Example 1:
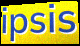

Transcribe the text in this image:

ipsis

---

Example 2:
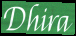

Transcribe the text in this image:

Dhira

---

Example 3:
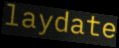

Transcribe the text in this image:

laydate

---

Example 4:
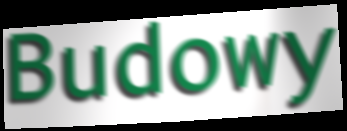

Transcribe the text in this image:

Budowy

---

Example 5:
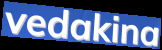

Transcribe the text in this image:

vedakina